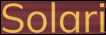
Solari